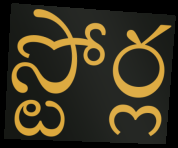
స్టోర్ల